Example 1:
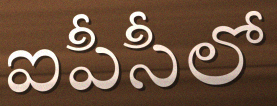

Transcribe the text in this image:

ఐపీసీలో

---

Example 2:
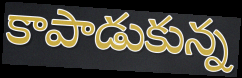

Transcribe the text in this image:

కాపాడుకున్న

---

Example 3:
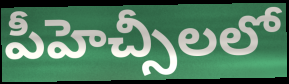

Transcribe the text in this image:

పీహెచ్సీలలో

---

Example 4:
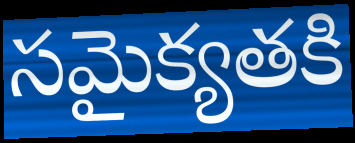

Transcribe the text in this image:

సమైక్యతకి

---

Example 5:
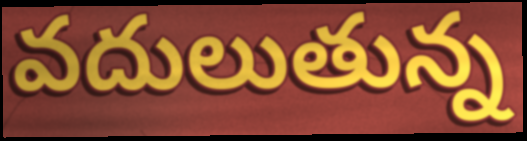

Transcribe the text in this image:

వదులుతున్న